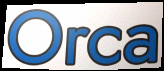
Orca